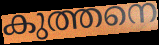
കുത്തനെ